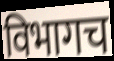
विभागच